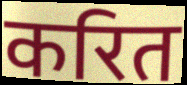
करित